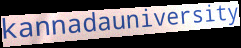
kannadauniversity